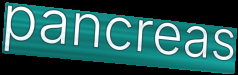
pancreas